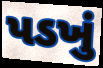
પડખું